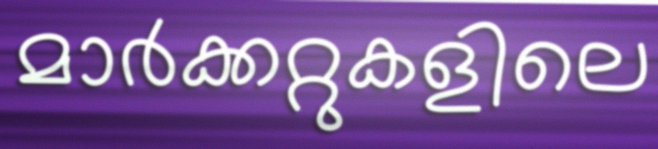
മാർക്കറ്റുകളിലെ